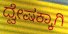
ದ್ವೇಷಕ್ಕಾಗಿ